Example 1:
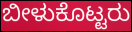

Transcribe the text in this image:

ಬೀಳುಕೊಟ್ಟರು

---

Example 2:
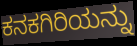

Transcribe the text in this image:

ಕನಕಗಿರಿಯನ್ನು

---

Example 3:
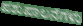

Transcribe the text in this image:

ಪಶುಪಾಲನೆಗಳು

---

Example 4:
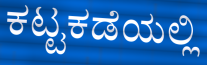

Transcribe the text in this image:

ಕಟ್ಟಕಡೆಯಲ್ಲಿ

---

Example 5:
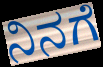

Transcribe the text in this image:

ನಿನಗೆ